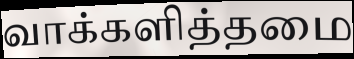
வாக்களித்தமை